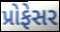
પ્રોફેસર